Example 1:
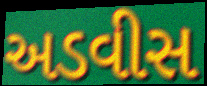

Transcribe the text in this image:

અડવીસ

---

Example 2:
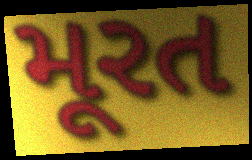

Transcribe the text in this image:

મૂરત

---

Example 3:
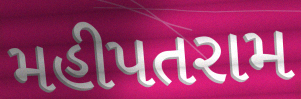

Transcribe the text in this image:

મહીપતરામ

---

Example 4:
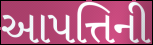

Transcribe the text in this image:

આપત્તિની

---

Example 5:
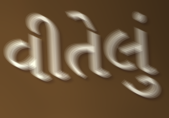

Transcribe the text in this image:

વીતેલું